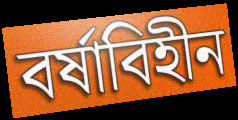
বর্ষাবিহীন